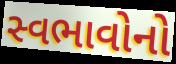
સ્વભાવોનો